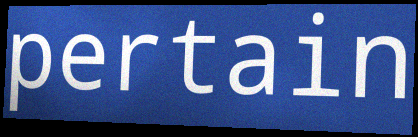
pertain